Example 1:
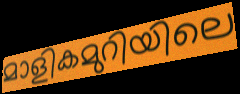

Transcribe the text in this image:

മാളികമുറിയിലെ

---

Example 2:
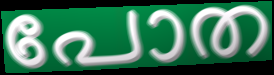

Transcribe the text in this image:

പോത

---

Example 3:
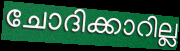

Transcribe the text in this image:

ചോദിക്കാറില്ല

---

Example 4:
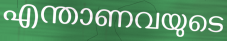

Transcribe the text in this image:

എന്താണവയുടെ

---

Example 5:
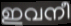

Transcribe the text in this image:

ഇവനീ